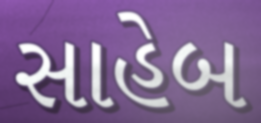
સાહેબ